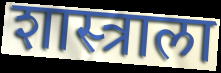
शास्त्राला